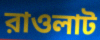
রাওলাট